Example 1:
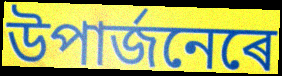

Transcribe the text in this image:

উপাৰ্জনেৰে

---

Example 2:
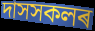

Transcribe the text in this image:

দাসসকলৰ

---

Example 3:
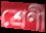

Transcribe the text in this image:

শ্ৰেণী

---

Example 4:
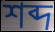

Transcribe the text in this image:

শব্দ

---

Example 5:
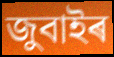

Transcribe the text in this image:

জুবাইৰ